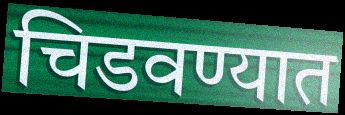
चिडवण्यात